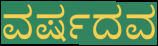
ವರ್ಷದವ